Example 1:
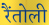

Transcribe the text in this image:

रैंतोली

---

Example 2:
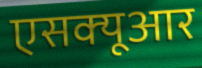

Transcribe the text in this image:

एसक्यूआर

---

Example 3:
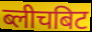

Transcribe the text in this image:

ब्लीचबिट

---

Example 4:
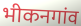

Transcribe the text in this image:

भीकनगांव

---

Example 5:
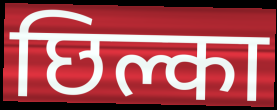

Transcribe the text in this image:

छिल्का